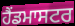
ਹੈਂਡਮਾਸਟਰ